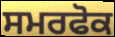
ਸਮਰਫੋਕ